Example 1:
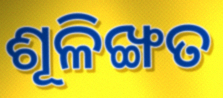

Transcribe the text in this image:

ଶୂଳିଙ୍ଖତ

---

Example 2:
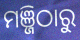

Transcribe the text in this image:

ମଞ୍ଜିଠାରୁ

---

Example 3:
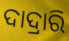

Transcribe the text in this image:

ଦାଦ୍ରାରି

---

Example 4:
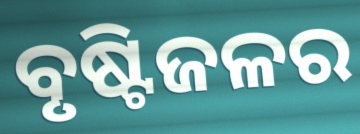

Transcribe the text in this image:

ବୃଷ୍ଟିଜଳର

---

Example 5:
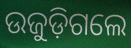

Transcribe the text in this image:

ଉଜୁଡ଼ିଗଲେ